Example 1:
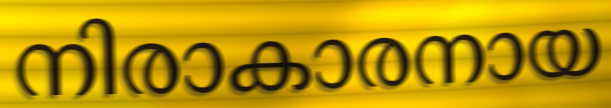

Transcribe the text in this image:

നിരാകാരനായ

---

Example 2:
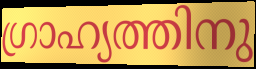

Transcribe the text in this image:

ഗ്രാഹ്യത്തിനു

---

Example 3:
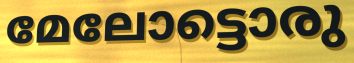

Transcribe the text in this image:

മേലോട്ടൊരു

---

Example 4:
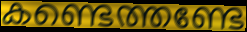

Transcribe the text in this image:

കണ്ടെത്തണ്ടേ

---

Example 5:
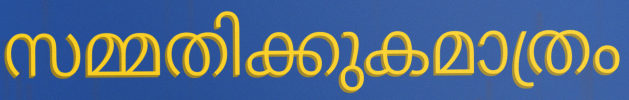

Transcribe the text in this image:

സമ്മതിക്കുകമാത്രം